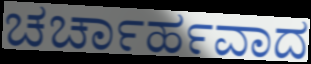
ಚರ್ಚಾರ್ಹವಾದ